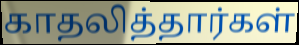
காதலித்தார்கள்